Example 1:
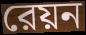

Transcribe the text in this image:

রেয়ন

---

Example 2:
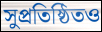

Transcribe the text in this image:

সুপ্রতিষ্ঠিতও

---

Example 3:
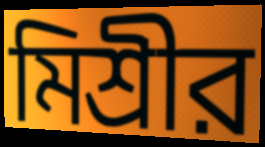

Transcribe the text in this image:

মিশ্রীর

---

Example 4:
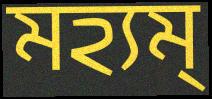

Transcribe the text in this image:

মহ্যম্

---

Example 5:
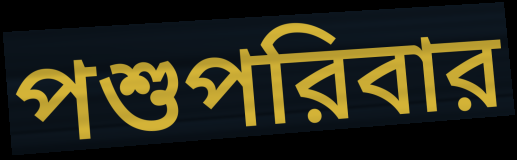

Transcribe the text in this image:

পশুপরিবার